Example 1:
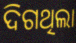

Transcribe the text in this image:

ଦିଗଥିଲା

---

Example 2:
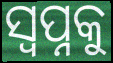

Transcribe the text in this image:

ସ୍ୱପ୍ନକୁ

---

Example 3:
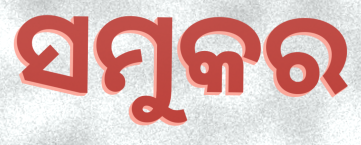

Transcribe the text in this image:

ସମୁକର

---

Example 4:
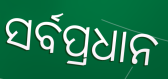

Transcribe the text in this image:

ସର୍ବପ୍ରଧାନ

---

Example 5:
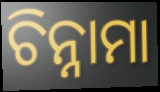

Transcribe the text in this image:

ଚିନ୍ନାମା